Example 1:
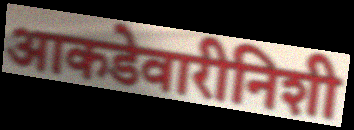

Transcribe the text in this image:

आकडेवारीनिशी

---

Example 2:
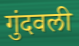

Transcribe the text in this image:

गुंदवली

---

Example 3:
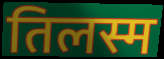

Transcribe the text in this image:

तिलस्म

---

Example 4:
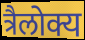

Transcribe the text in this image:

त्रैलोक्य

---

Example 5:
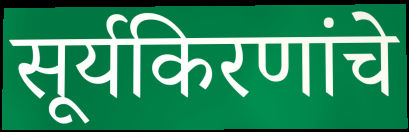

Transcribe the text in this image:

सूर्यकिरणांचे